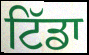
ਟਿੱਡਾ